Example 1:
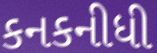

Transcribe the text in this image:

કનકનીધી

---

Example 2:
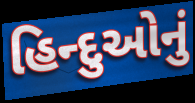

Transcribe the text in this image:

હિન્દુઓનું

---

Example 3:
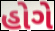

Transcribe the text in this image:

હોગે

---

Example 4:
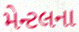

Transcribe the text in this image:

મેન્ટલના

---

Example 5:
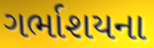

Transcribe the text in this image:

ગર્ભાશયના